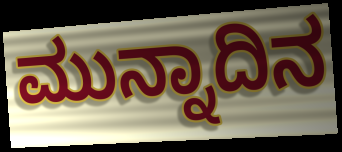
ಮುನ್ನಾದಿನ